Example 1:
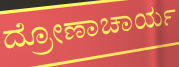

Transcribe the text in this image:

ದ್ರೋಣಾಚಾರ್ಯ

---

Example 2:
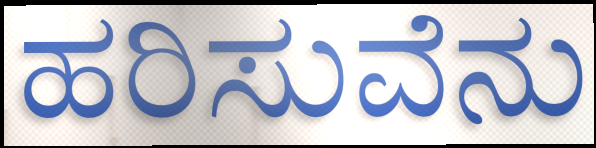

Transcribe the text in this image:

ಹರಿಸುವೆನು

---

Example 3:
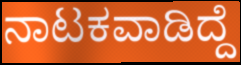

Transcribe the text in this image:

ನಾಟಕವಾಡಿದ್ದೆ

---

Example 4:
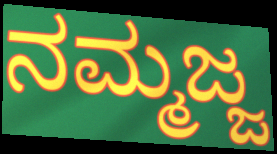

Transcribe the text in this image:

ನಮ್ಮಜ್ಜ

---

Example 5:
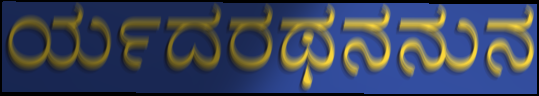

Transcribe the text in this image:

ರ್ಯದರಥನನುನ